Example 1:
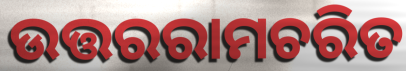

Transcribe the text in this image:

ଉତ୍ତରରାମଚରିତ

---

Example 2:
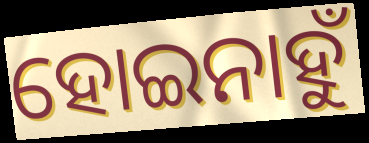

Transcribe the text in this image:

ହୋଇନାହୁଁ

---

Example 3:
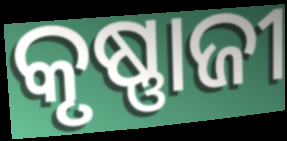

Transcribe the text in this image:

କୃଷ୍ଣାଜୀ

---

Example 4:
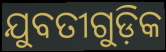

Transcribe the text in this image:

ଯୁବତୀଗୁଡ଼ିକ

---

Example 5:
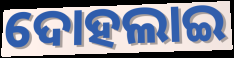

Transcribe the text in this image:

ଦୋହଲାଇ